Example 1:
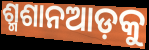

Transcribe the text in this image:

ଶ୍ମଶାନଆଡ଼କୁ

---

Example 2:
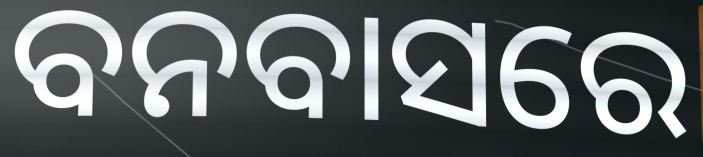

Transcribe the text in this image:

ବନବାସରେ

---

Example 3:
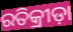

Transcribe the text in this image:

ରତିକ୍ରୀଡ଼ା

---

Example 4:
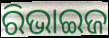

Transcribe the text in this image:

ରିଭାଇଜ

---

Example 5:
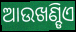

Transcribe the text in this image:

ଆଉଖଣ୍ଡିଏ